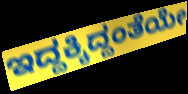
ಇದ್ದಕ್ಕಿದ್ದಂತೆಯೇ